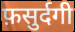
फ़सुर्दगी